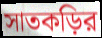
সাতকড়ির